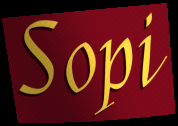
Sopi